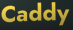
Caddy